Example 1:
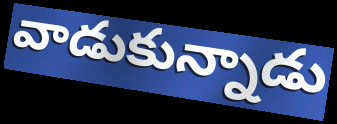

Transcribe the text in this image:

వాడుకున్నాడు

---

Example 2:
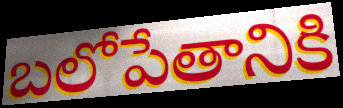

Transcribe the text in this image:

బలోపేతానికి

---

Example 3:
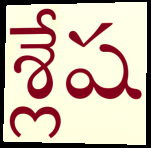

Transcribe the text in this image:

శ్లేష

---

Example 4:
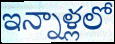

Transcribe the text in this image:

ఇన్నాళ్లలో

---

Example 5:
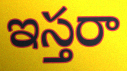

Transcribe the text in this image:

ఇస్తరా